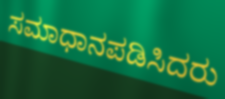
ಸಮಾಧಾನಪಡಿಸಿದರು